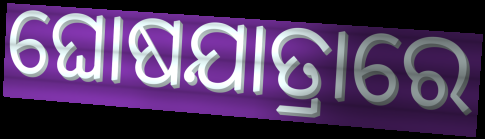
ଘୋଷଯାତ୍ରାରେ